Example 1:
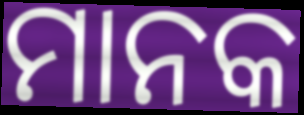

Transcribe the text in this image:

ମାନକ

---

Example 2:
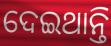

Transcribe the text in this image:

ଦେଇଥାନ୍ତି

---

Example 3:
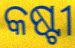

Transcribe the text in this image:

କଷ୍ଟୀ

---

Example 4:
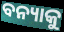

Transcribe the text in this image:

ବନ୍ୟାକୁ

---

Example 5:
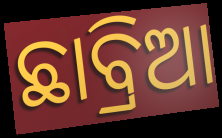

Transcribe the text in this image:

ଛାବ୍ରିଆ